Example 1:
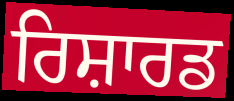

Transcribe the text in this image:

ਰਿਸ਼ਾਰਡ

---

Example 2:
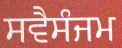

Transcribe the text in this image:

ਸਵੈਸੰਜਮ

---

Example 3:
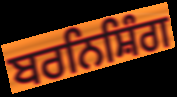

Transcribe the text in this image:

ਬਰਨਿਸ਼ਿੰਗ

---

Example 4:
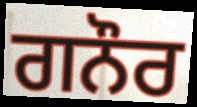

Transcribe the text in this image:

ਗਨੌਰ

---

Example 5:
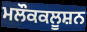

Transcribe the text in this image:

ਮਲੌਕਕਲੂਸ਼ਨ